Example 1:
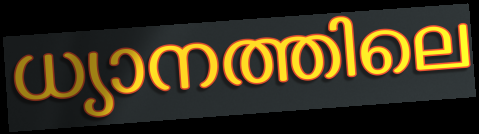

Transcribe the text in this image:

ധ്യാനത്തിലെ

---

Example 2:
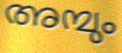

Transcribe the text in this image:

അമ്പും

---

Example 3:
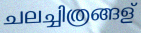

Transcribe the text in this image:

ചലച്ചിത്രങ്ങള്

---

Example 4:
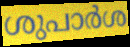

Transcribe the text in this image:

ശുപാർശ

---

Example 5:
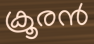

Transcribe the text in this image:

ക്രൂരൻ